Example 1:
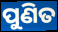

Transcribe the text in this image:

ପୁଣିତ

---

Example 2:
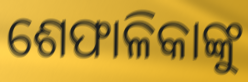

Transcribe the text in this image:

ଶେଫାଳିକାଙ୍କୁ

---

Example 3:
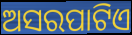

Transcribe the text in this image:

ଅସରପାଟିଏ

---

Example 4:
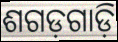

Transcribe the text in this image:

ଶଗଡ଼ଗାଡ଼ି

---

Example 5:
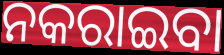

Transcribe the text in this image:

ନକରାଇବା